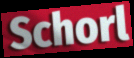
Schorl